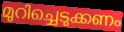
മുറിച്ചെടുക്കണം